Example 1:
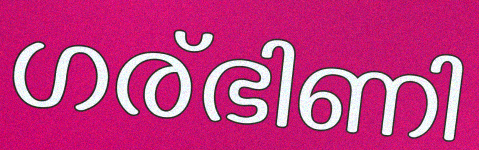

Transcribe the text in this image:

ഗര്ഭിണി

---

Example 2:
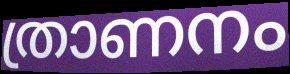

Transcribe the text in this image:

ത്രാണനം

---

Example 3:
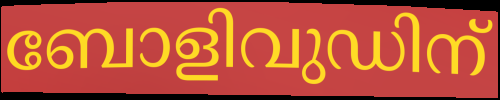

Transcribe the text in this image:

ബോളിവുഡിന്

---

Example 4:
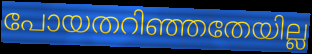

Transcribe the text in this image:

പോയതറിഞ്ഞതേയില്ല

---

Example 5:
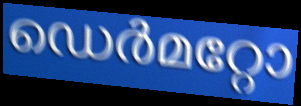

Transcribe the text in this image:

ഡെർമറ്റോ